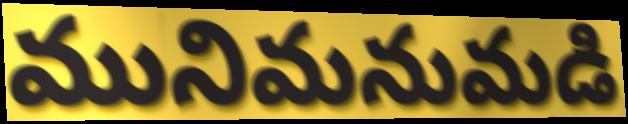
మునిమనుమడి